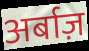
अर्बाज़